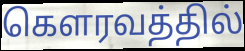
கௌரவத்தில்